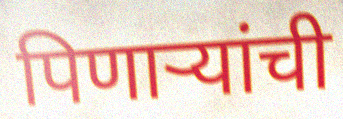
पिणाऱ्यांची